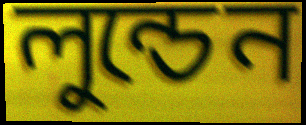
লুন্ডেন